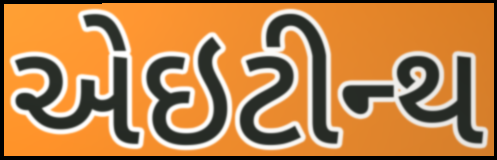
એઇટીન્થ